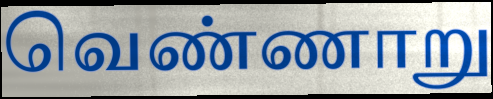
வெண்ணாறு